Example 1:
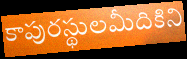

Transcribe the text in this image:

కాపురస్థులమీదికిని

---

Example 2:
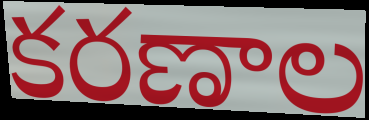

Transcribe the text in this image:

కరణాల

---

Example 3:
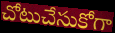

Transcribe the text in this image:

చోటుచేసుకోగా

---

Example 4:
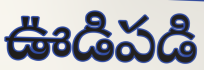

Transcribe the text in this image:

ఊడిపడి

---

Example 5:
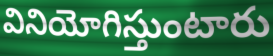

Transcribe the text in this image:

వినియోగిస్తుంటారు